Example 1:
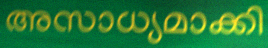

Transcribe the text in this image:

അസാധ്യമാക്കി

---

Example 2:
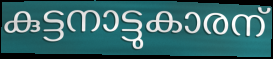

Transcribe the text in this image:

കുട്ടനാട്ടുകാരന്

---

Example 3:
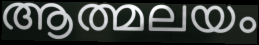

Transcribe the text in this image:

ആത്മലയം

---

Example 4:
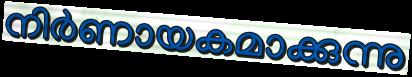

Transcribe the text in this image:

നിർണായകമാക്കുന്നു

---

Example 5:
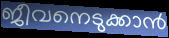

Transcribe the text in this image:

ജീവനെടുക്കാൻ